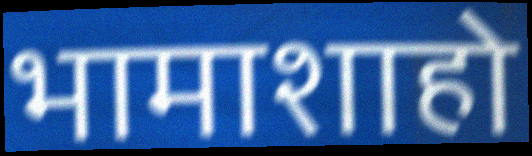
भामाशाहो